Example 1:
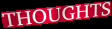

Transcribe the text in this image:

THOUGHTS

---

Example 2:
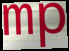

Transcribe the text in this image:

mp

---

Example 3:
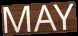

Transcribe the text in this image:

MAY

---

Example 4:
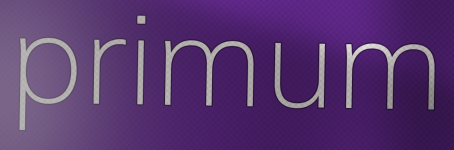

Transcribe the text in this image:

primum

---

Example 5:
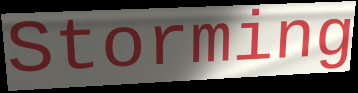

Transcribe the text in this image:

Storming